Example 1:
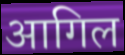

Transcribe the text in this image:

आगिल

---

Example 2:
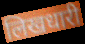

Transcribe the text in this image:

लिखधारी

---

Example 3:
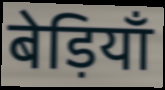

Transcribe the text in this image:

बेड़ियाँ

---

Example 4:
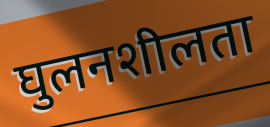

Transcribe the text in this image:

घुलनशीलता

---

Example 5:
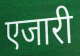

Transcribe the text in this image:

एजारी